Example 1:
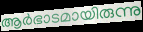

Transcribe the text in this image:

ആർഭാടമായിരുന്നു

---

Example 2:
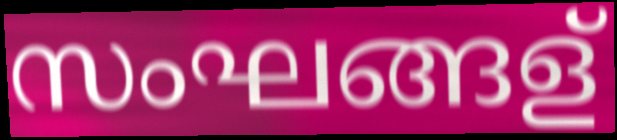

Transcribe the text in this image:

സംഘങ്ങള്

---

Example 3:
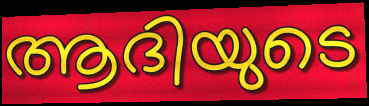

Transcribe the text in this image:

ആദിയുടെ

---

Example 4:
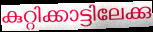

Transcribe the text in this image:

കുറ്റിക്കാട്ടിലേക്കു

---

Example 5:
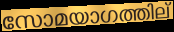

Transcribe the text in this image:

സോമയാഗത്തില്